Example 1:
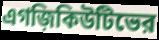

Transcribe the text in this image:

এগজ়িকিউটিভের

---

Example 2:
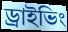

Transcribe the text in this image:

ড্রাইভিং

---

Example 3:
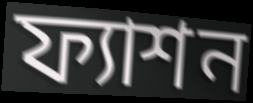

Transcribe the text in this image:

ফ্যাশন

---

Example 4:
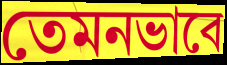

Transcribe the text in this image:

তেমনভাবে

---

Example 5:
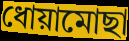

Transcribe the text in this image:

ধোয়ামোছা